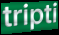
tripti